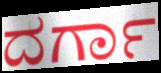
ದರ್ಗಾ